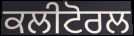
ਕਲੀਟੋਰਲ